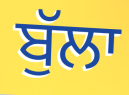
ਬੁੱਲਾ